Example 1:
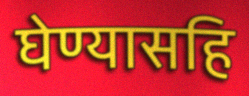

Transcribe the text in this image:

घेण्यासहि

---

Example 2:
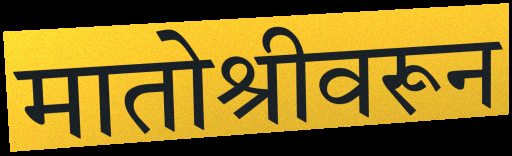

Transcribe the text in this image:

मातोश्रीवरून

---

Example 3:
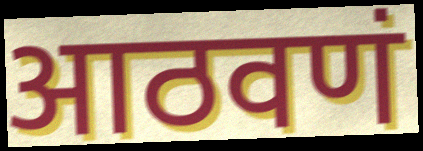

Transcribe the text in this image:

आठवणं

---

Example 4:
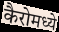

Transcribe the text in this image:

कैरोमध्ये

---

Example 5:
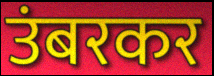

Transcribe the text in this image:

उंबरकर